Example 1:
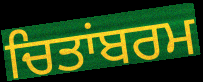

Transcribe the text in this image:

ਚਿਤਾਂਬਰਮ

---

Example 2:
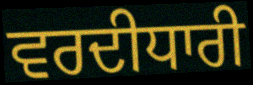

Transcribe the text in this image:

ਵਰਦੀਧਾਰੀ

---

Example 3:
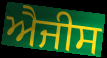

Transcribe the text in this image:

ਐਜੀਸ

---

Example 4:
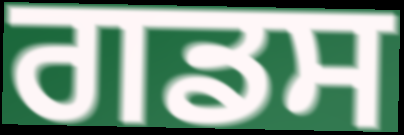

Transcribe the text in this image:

ਗਡਸ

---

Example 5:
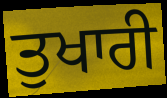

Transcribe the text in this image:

ਤੁਖਾਰੀ